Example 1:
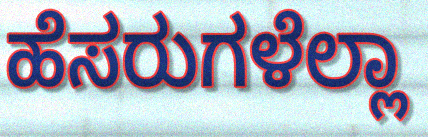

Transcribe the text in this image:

ಹೆಸರುಗಳೆಲ್ಲಾ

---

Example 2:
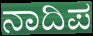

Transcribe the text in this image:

ನಾದಿಪ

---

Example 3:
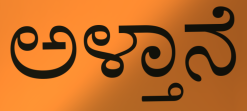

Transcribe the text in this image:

ಅಳ್ತಾನೆ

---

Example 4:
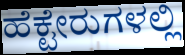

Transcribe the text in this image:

ಹೆಕ್ಟೇರುಗಳಲ್ಲಿ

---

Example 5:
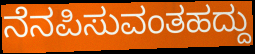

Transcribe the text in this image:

ನೆನಪಿಸುವಂತಹದ್ದು